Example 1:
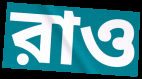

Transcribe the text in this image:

রাও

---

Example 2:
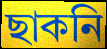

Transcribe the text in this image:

ছাকনি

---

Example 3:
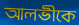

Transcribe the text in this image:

আলভীকে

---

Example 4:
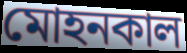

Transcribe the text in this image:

মোহনকাল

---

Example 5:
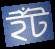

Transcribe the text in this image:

ইঁট